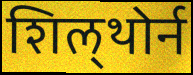
शिल्थोर्न